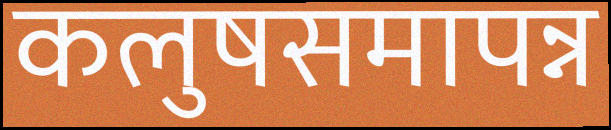
कलुषसमापन्न